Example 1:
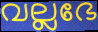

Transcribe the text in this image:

വല്ലഭേ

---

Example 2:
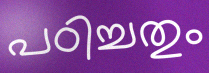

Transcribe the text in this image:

പഠിച്ചതും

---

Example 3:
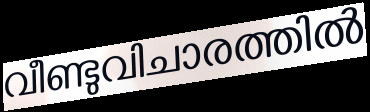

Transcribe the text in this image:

വീണ്ടുവിചാരത്തിൽ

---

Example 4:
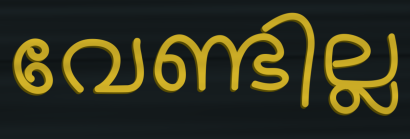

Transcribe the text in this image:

വേണ്ടില്ല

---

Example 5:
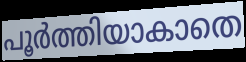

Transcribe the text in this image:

പൂർത്തിയാകാതെ